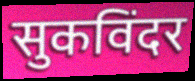
सुकविंदर